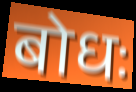
बोधः